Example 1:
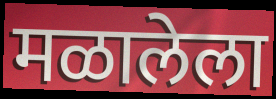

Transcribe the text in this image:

मळालेला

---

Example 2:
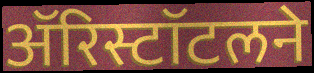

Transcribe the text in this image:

ॲरिस्टॉटलने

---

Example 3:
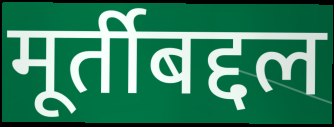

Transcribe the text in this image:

मूर्तीबद्दल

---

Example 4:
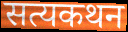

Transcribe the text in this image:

सत्यकथन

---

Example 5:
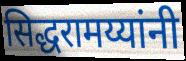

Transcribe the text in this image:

सिद्धरामय्यांनी